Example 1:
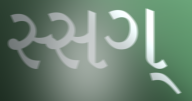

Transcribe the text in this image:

સ્સગ્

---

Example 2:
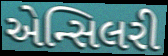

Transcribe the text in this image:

એન્સિલરી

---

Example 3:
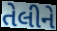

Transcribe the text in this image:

તેલીને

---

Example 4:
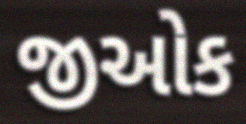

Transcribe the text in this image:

જીઓક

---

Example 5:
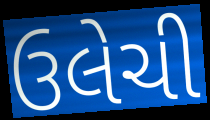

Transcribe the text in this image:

ઉલેચી